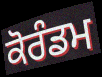
ਕੋਰੰਡਮ